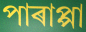
পাৰাপ্পা